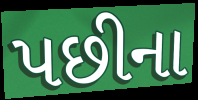
પછીના